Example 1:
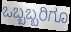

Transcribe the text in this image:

ಒಬ್ಬಬ್ಬರಿಗೂ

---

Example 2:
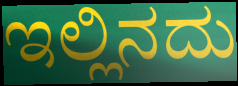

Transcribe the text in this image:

ಇಲ್ಲಿನದು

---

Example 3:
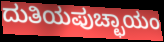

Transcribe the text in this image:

ದುತಿಯಪುಚ್ಛಾಯಂ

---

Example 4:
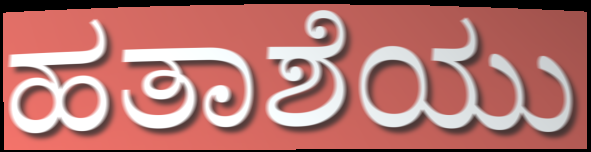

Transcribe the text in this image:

ಹತಾಶೆಯು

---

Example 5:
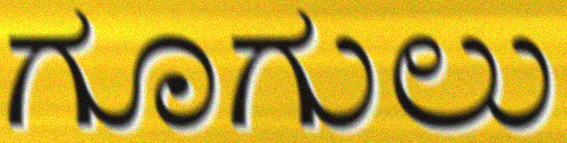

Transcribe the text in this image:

ಗೂಗುಲು